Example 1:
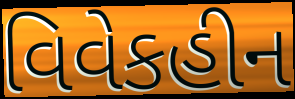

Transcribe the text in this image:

વિવેકહીન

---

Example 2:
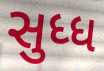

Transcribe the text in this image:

સુધ્ધ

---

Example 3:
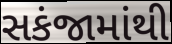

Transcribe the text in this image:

સકંજામાંથી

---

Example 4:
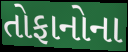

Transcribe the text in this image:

તોફાનોના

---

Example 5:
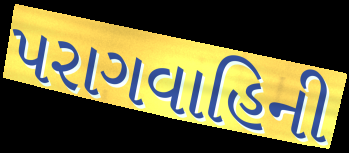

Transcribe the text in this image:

પરાગવાહિની